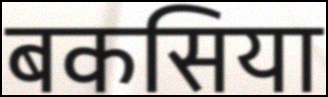
बकसिया